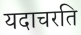
यदाचरति